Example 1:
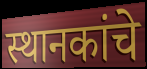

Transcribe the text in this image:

स्थानकांचे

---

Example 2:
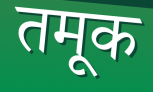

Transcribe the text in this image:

तमूक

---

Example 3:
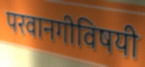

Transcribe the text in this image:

परवानगीविषयी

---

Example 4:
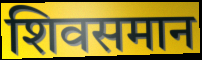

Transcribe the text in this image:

शिवसमान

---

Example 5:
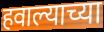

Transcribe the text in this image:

हवाल्याच्या